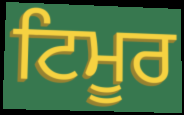
ਟਿਮੂਰ